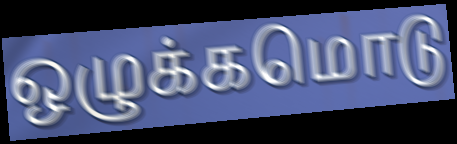
ஒழுக்கமொடு